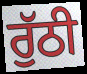
ਰੁੱਠੀ